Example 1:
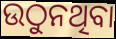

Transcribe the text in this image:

ଉଠୁନଥିବା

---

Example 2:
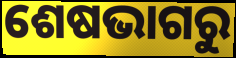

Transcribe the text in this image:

ଶେଷଭାଗରୁ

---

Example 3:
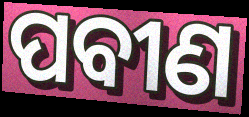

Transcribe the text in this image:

ପବୀଣ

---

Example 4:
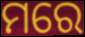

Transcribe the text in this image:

ମରେ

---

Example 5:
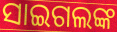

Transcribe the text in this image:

ସାଇଗଲଙ୍କ